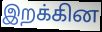
இறக்கின